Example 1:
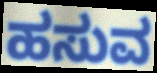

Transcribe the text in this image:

ಹಸುವ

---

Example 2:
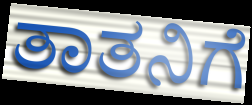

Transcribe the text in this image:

ತಾತನಿಗೆ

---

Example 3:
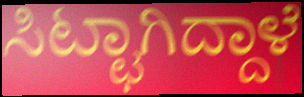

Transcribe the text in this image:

ಸಿಟ್ಟಾಗಿದ್ದಾಳೆ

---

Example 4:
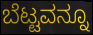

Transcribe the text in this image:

ಬೆಟ್ಟವನ್ನೂ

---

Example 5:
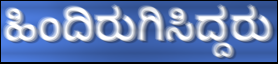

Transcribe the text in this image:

ಹಿಂದಿರುಗಿಸಿದ್ದರು